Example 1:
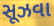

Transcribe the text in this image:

સૂઝવા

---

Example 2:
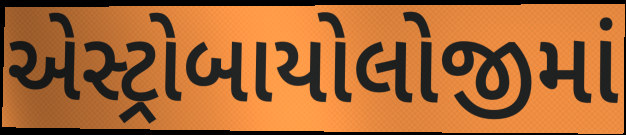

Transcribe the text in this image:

એસ્ટ્રોબાયોલોજીમાં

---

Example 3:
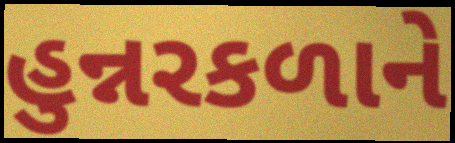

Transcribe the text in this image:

હુન્નરકળાને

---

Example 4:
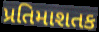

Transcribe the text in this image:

પ્રતિમાશતક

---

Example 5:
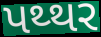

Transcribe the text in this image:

પથ્થર